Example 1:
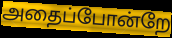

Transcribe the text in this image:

அதைப்போன்றே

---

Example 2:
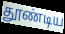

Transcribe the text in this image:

தூண்டிய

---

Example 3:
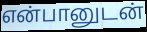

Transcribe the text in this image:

என்பானுடன்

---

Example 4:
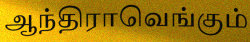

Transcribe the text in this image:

ஆந்திராவெங்கும்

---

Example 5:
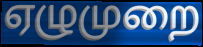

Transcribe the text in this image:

ஏழுமுறை